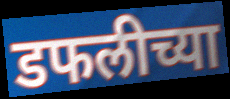
डफलीच्या